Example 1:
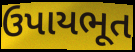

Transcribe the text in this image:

ઉપાયભૂત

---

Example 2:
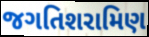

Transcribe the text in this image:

જગતિશરામિણ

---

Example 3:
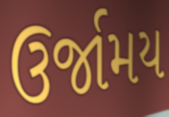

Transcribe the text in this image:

ઉર્જામય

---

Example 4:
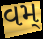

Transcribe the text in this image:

વમ્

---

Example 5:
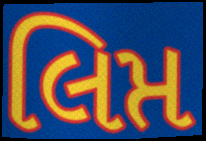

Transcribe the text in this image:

લિપ્ત